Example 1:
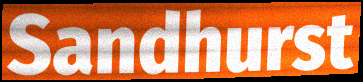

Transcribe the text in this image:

Sandhurst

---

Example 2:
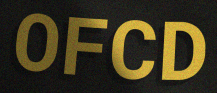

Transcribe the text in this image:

OFCD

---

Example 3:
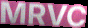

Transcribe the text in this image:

MRVC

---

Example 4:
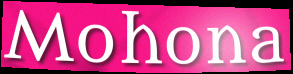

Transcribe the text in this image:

Mohona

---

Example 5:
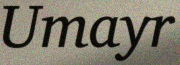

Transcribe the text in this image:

Umayr